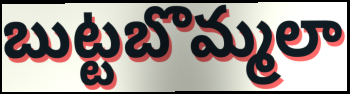
బుట్టబొమ్మలా